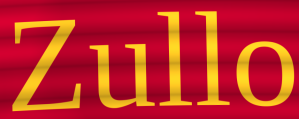
Zullo